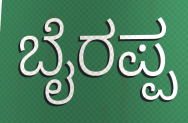
ಬೈರಪ್ಪ